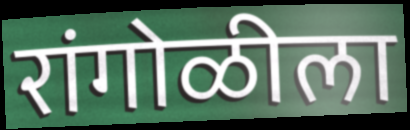
रांगोळीला